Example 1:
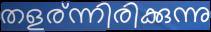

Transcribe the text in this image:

തളര്ന്നിരിക്കുന്നു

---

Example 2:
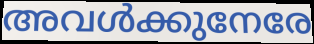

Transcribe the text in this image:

അവൾക്കുനേരേ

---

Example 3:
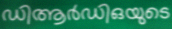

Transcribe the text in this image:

ഡിആർഡിഒയുടെ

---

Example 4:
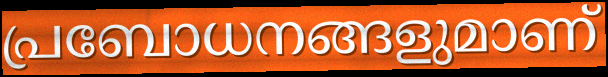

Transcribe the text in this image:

പ്രബോധനങ്ങളുമാണ്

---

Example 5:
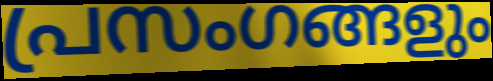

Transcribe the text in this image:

പ്രസംഗങ്ങളും